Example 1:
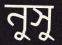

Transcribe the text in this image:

নুসু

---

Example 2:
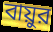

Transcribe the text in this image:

বায়ুর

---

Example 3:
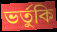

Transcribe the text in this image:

ভর্তুকি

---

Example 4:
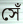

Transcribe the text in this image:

সেঁ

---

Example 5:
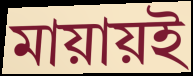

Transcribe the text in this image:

মায়ায়ই